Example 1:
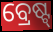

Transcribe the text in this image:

ବ୍ରେଷ୍ଟ୍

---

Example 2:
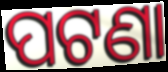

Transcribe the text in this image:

ପଟଣା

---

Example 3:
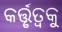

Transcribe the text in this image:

କର୍ତ୍ତୃତ୍ୱକୁ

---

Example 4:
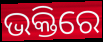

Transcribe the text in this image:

ଭକ୍ତିରେ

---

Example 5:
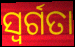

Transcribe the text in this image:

ସ୍ୱର୍ଗତା